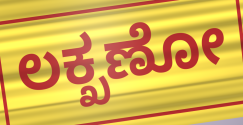
ಲಕ್ಖಣೋ